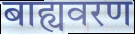
बाह्यवरण